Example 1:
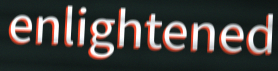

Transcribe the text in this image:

enlightened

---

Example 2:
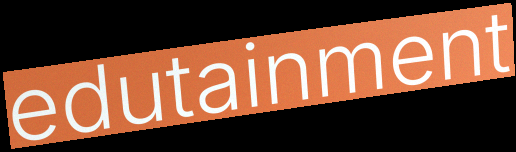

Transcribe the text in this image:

edutainment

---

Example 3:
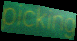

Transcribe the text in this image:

picking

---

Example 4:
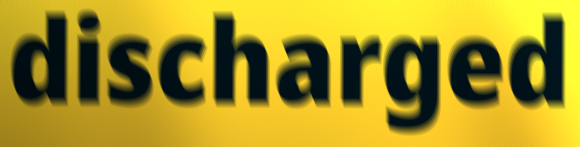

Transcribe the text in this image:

discharged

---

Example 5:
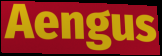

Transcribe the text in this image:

Aengus